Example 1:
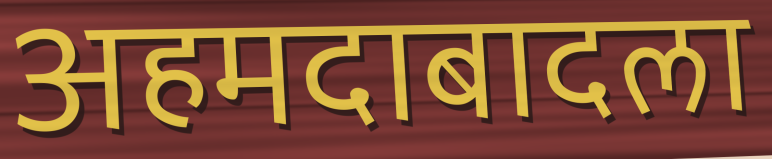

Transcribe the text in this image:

अहमदाबादला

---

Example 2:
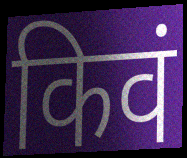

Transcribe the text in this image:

किवं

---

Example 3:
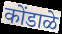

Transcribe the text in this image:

कोंडाळे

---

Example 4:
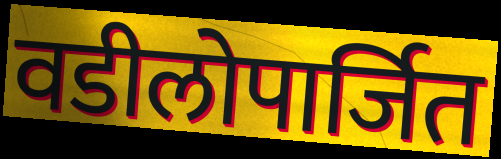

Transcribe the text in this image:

वडीलोपार्जित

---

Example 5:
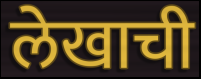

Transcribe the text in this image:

लेखाची